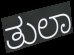
ತುಲಾ